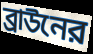
ব্রাউনের